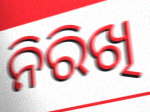
ନିରିଖି